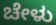
ಚೇಳು